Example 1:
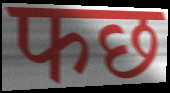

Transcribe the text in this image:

फछ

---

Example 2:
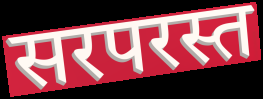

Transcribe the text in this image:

सरपरस्त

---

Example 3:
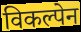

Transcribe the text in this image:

विकल्पेन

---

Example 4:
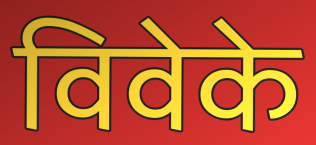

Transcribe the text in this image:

विवेके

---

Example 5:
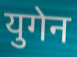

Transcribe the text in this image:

युगेन